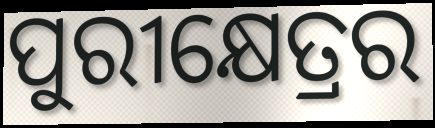
ପୁରୀକ୍ଷେତ୍ରର